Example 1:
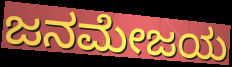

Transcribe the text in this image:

ಜನಮೇಜಯ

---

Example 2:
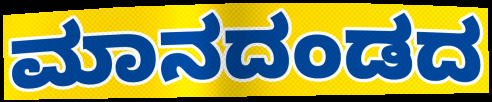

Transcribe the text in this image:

ಮಾನದಂಡದ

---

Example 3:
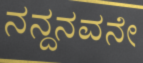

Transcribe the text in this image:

ನನ್ದನವನೇ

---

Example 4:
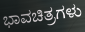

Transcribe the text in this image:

ಭಾವಚಿತ್ರಗಳು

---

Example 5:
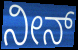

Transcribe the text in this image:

ನೀನ್